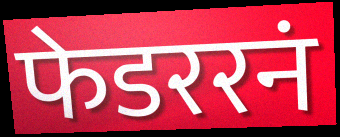
फेडररनं